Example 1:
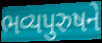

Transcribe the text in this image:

ભવ્યપુરુષને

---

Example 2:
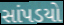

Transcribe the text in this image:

સાંપડયો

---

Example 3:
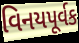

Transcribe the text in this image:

વિનયપૂર્વક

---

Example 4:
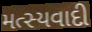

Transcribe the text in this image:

મત્સ્યવાદી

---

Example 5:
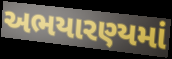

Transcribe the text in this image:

અભયારણ્યમાં